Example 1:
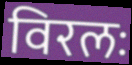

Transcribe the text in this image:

विरलः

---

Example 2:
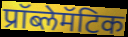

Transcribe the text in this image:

प्रॉब्लेमॅटिक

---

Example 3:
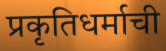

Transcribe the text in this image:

प्रकृतिधर्माची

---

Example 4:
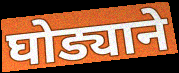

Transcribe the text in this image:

घोड्याने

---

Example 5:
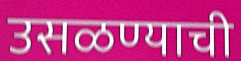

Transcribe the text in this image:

उसळण्याची